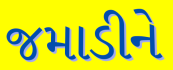
જમાડીને